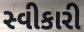
સ્વીકારી